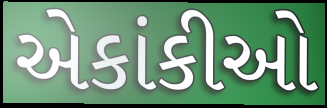
એકાંકીઓ